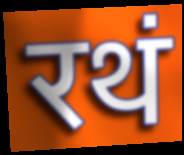
रथं